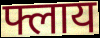
फ्लाय